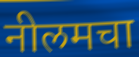
नीलमचा